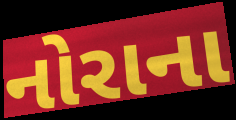
નોરાના